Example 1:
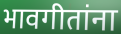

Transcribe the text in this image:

भावगीतांना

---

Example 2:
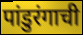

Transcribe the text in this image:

पांडुरंगाची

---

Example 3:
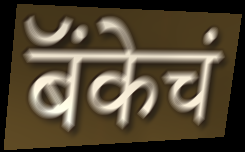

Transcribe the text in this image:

बॅंकेचं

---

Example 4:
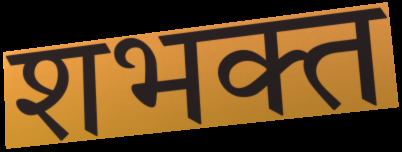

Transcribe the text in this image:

शभक्त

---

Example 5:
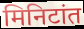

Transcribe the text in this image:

मिनिटांत